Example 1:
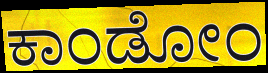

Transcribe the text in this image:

ಕಾಂಡೋಂ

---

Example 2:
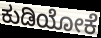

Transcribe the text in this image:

ಕುಡಿಯೋಕೆ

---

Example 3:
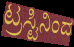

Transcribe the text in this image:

ಟ್ರಸ್ಟಿನಿಂದ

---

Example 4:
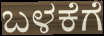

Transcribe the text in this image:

ಬಳಕೆಗೆ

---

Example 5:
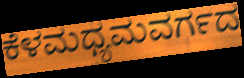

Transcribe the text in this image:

ಕೆಳಮಧ್ಯಮವರ್ಗದ